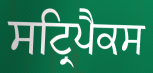
ਸਟ੍ਰਿਪੈਕਸ